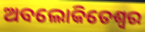
ଅବଲୋକିତେଶ୍ୱର